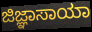
ಜಿಜ್ಞಾಸಾಯಾ